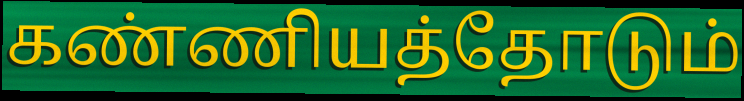
கண்ணியத்தோடும்